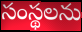
సంస్థలను